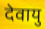
देवायु